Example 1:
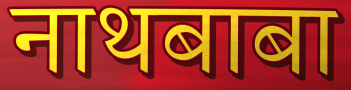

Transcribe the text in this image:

नाथबाबा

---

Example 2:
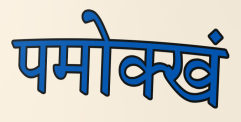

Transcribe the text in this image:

पमोक्खं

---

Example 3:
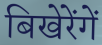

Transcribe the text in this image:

बिखेरेंगें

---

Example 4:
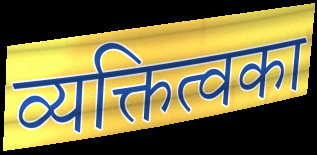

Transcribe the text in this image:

व्यक्तित्वका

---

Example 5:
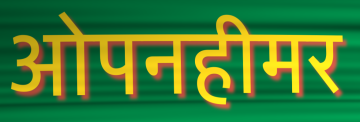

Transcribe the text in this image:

ओपनहीमर